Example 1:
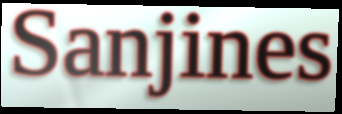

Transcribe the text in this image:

Sanjines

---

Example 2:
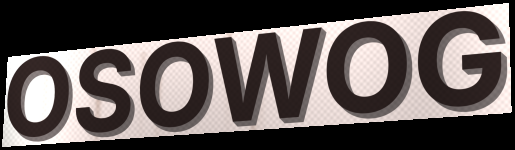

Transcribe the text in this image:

OSOWOG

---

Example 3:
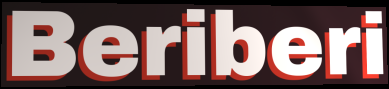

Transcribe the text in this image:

Beriberi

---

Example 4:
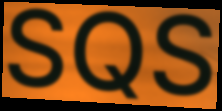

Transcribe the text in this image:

SQS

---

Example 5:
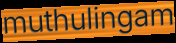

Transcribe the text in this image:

muthulingam